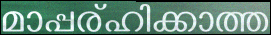
മാപ്പര്ഹിക്കാത്ത